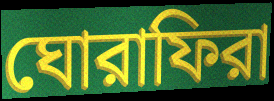
ঘোরাফিরা